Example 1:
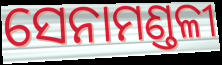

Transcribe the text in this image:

ସେନାମଣ୍ଡଳୀ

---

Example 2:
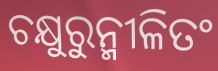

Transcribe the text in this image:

ଚକ୍ଷୁରୁନ୍ମୀଳିତଂ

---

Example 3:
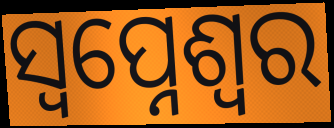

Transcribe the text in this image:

ସ୍ଵପ୍ନେଶ୍ଵର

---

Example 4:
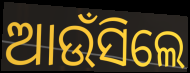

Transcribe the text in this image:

ଆଉଁସିଲେ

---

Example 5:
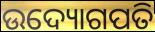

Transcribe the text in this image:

ଉଦ୍ୟୋଗପତି